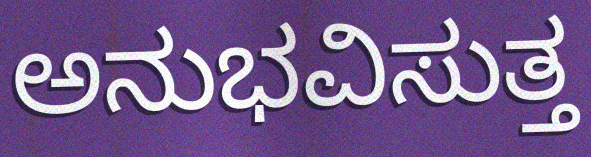
ಅನುಭವಿಸುತ್ತ